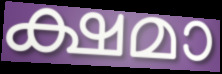
ക്ഷമാ